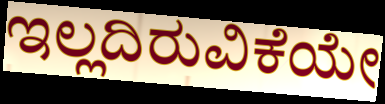
ಇಲ್ಲದಿರುವಿಕೆಯೇ